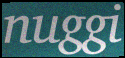
nuggi